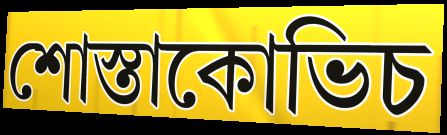
শোস্তাকোভিচ